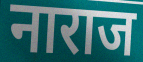
नाराज